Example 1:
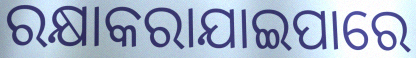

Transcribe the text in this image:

ରକ୍ଷାକରାଯାଇପାରେ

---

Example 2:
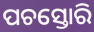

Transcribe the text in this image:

ପଚସ୍ତୋରି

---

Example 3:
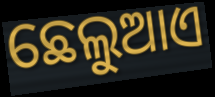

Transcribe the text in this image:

ଛେଲୁଆଏ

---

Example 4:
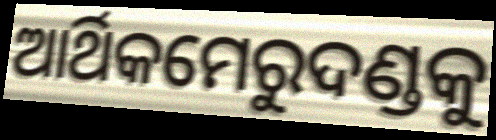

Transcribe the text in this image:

ଆର୍ଥିକମେରୁଦଣ୍ଡକୁ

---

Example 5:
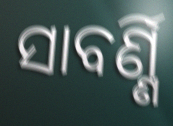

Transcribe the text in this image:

ସାବର୍ଣ୍ଣି